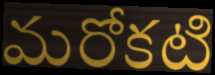
మరోకటి